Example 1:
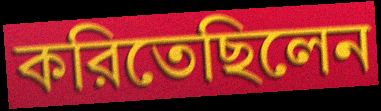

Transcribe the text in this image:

করিতেছিলেন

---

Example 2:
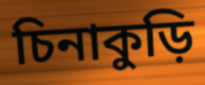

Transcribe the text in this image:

চিনাকুড়ি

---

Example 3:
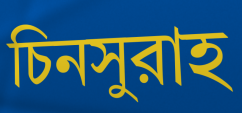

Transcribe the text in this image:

চিনসুরাহ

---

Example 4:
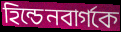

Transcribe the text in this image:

হিন্ডেনবার্গকে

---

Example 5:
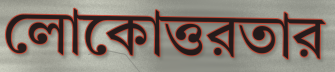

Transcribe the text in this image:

লোকোত্তরতার